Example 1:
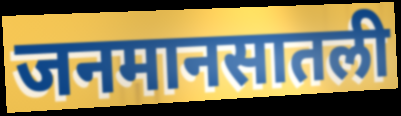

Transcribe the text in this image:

जनमानसातली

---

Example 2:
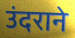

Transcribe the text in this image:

उंदराने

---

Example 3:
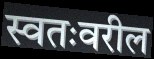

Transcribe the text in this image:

स्वतःवरील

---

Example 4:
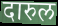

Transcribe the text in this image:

दारुल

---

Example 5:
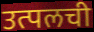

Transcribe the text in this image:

उत्पलची